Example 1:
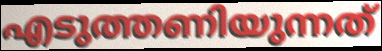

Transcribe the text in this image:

എടുത്തണിയുന്നത്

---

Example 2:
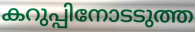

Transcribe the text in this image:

കറുപ്പിനോടടുത്ത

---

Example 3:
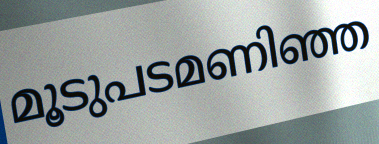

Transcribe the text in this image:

മൂടുപടമണിഞ്ഞ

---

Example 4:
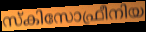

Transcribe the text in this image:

സ്കിസോഫ്രീനിയ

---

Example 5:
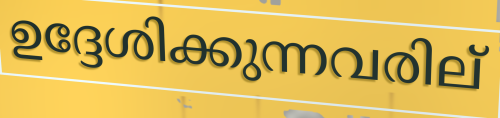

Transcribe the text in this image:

ഉദ്ദേശിക്കുന്നവരില്